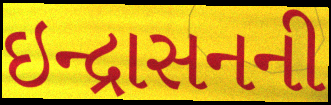
ઇન્દ્રાસનની